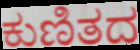
ಕುಣಿತದ